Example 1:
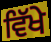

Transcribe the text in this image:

ਵਿੱਖੇ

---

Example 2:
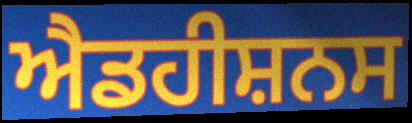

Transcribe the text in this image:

ਐਡਹੀਸ਼ਨਸ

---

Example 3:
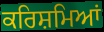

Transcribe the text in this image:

ਕਰਿਸ਼ਮਿਆਂ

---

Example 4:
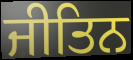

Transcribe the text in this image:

ਜੀਤਿਨ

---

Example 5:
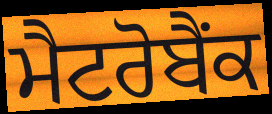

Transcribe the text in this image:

ਮੈਟਰੋਬੈਂਕ